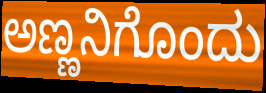
ಅಣ್ಣನಿಗೊಂದು